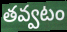
తవ్వటం